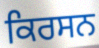
ਕਿਰਸਨ